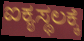
ಐಕ್ಯಸ್ಥಲಕ್ಕೆ